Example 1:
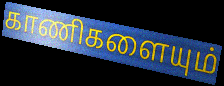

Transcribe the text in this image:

காணிகளையும்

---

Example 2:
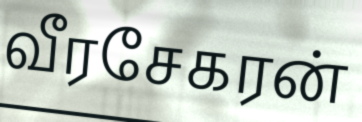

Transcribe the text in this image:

வீரசேகரன்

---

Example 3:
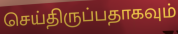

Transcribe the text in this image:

செய்திருப்பதாகவும்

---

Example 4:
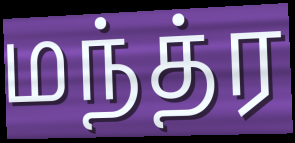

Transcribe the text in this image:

மந்த்ர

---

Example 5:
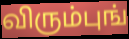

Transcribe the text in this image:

விரும்புங்